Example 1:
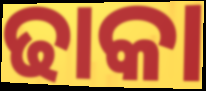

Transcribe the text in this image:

ଢାକା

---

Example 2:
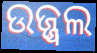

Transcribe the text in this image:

ଉଜ୍ଜ୍ୱଲ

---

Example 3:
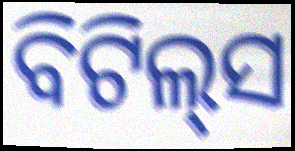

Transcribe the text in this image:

ବିଟିଲ୍‌ସ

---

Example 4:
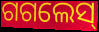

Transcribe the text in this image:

ଗଗଲେସ୍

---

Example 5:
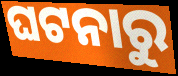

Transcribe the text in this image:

ଘଟନାରୁ